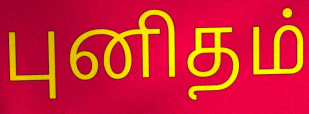
புனிதம்